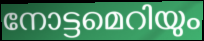
നോട്ടമെറിയും